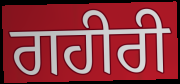
ਗਹੀਰੀ